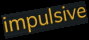
impulsive